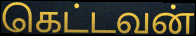
கெட்டவன்